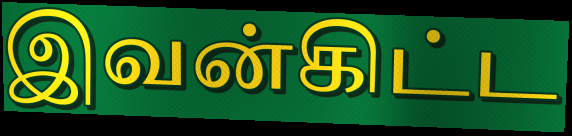
இவன்கிட்ட